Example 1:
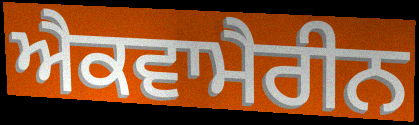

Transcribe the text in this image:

ਐਕਵਾਮੈਰੀਨ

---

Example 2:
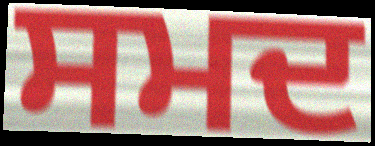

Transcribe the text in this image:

ਸਮਦ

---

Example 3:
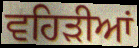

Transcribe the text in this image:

ਵਹਿੜੀਆਂ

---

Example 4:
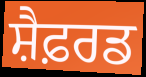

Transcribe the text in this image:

ਸ਼ੈਫ਼ਰਡ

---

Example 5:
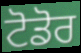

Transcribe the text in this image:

ਟੋਡੋਰ